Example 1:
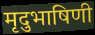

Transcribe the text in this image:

मृदुभाषिणी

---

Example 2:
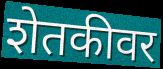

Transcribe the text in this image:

शेतकीवर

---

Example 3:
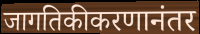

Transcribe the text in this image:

जागतिकीकरणानंतर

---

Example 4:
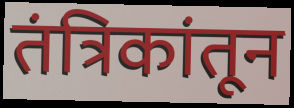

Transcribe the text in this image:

तंत्रिकांतून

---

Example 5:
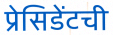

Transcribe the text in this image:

प्रेसिडेंटची